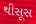
થીસૂસ